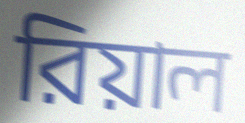
রিয়াল